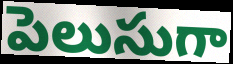
పెలుసుగా